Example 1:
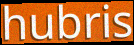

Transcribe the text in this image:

hubris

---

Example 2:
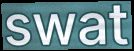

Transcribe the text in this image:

swat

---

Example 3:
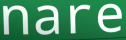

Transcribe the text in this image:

nare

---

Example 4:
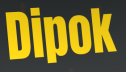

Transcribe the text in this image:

Dipok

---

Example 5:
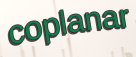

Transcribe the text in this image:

coplanar